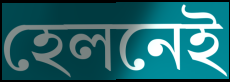
হেলনেই